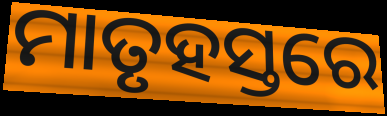
ମାତୃହସ୍ତରେ